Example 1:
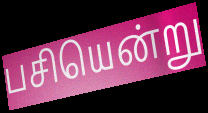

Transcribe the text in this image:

பசியென்று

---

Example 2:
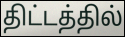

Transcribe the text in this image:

திட்டத்தில்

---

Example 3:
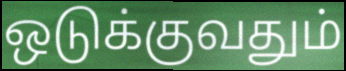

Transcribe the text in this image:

ஒடுக்குவதும்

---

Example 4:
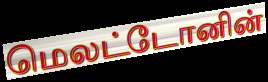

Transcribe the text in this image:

மெலட்டோனின்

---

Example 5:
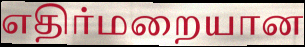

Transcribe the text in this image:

எதிர்மறையான